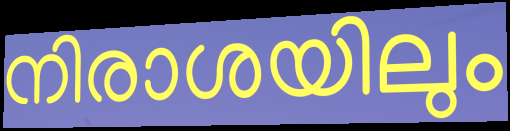
നിരാശയിലും